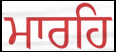
ਮਾਰਹਿ